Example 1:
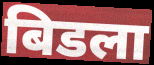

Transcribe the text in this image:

बिडला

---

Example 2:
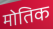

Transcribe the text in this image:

मोतिक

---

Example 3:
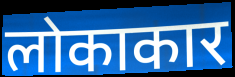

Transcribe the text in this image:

लोकाकार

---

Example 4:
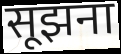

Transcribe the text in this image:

सूझना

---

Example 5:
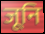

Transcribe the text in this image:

जूनि